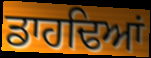
ਡਾਹਢਿਆਂ